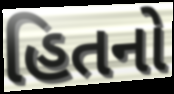
હિતનો